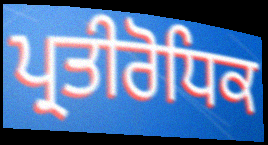
ਪ੍ਰਤੀਰੋਧਿਕ